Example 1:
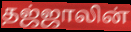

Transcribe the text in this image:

தஜ்ஜாலின்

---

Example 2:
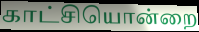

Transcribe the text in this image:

காட்சியொன்றை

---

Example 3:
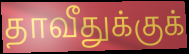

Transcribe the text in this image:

தாவீதுக்குக்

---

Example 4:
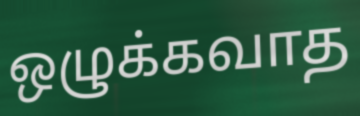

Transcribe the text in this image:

ஒழுக்கவாத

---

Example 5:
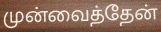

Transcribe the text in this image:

முன்வைத்தேன்